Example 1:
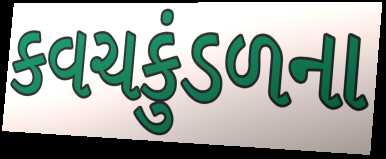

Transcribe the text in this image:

કવચકુંડળના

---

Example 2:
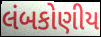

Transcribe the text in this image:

લંબકોણીય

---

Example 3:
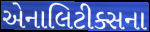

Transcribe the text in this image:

એનાલિટીક્સના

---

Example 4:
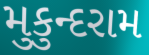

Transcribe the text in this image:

મુકુન્દરામ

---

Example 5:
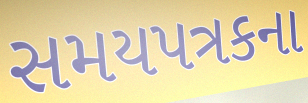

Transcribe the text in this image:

સમયપત્રકના